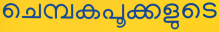
ചെമ്പകപൂക്കളുടെ